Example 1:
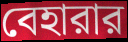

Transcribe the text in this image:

বেহারার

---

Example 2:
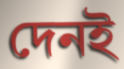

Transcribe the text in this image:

দেনই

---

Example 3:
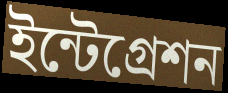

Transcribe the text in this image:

ইন্টেগ্রেশন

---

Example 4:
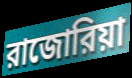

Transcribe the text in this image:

রাজোরিয়া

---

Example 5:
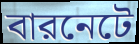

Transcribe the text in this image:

বারনেটে